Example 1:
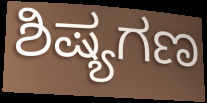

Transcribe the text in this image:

ಶಿಷ್ಯಗಣ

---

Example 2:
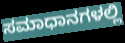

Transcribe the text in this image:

ಸಮಾಧಾನಗಳಲ್ಲಿ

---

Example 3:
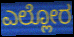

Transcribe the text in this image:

ಎಲ್ಲೋರ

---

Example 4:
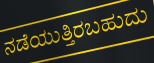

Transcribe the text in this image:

ನಡೆಯುತ್ತಿರಬಹುದು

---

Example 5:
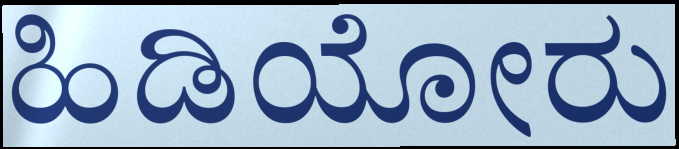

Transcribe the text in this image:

ಹಿಡಿಯೋರು